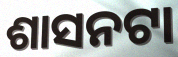
ଶାସନଟା